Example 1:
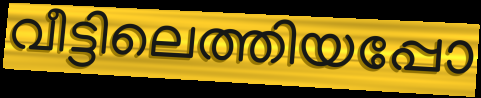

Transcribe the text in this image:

വീട്ടിലെത്തിയപ്പോ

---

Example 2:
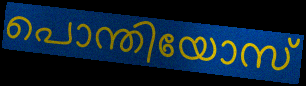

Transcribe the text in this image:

പൊന്തിയോസ്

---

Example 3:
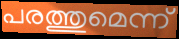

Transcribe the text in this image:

പരത്തുമെന്ന്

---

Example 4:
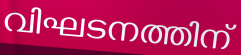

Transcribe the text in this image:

വിഘടനത്തിന്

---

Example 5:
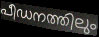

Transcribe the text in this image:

പീഡനത്തിലും